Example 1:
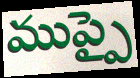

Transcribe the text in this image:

ముప్పై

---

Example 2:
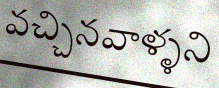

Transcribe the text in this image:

వచ్చినవాళ్ళని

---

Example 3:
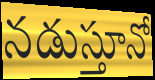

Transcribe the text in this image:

నడుస్తూనో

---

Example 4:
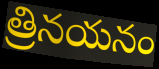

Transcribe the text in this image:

త్రినయనం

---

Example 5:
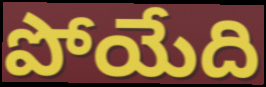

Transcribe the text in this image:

పోయేది